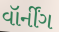
વૉર્નીંગ